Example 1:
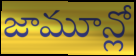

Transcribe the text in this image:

జామూన్లో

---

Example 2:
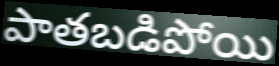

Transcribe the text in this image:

పాతబడిపోయి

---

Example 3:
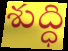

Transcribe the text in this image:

శుద్ధి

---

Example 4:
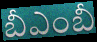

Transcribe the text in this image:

బీఎంబీ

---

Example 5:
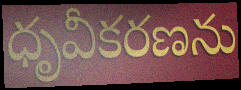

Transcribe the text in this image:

ధృవీకరణను